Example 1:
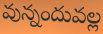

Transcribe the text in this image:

వున్నందువల్ల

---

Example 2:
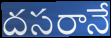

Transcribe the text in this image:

దసరానే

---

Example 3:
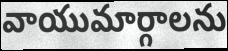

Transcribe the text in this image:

వాయుమార్గాలను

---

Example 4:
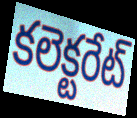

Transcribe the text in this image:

కలెక్టరేట్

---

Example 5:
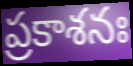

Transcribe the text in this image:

ప్రకాశనః